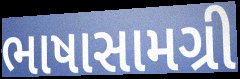
ભાષાસામગ્રી